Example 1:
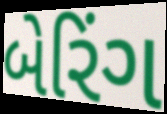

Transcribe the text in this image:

બેરિંગ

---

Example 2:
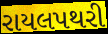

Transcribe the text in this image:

રાયલપથરી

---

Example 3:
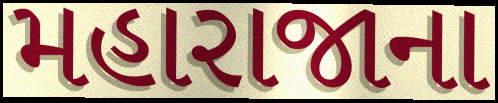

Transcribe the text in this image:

મહારાજાના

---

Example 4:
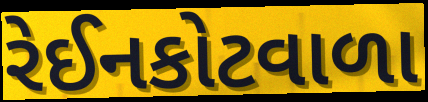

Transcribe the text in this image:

રેઈનકોટવાળા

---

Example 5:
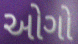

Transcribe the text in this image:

ઓગો